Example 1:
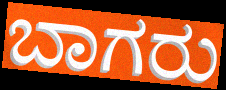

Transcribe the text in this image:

ಬಾಗರು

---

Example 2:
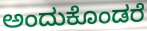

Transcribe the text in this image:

ಅಂದುಕೊಂಡರೆ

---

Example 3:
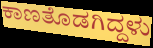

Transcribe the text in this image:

ಕಾಣತೊಡಗಿದ್ದಳು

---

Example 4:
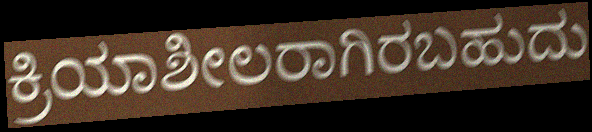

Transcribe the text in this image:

ಕ್ರಿಯಾಶೀಲರಾಗಿರಬಹುದು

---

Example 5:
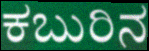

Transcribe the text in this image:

ಕಬುರಿನ